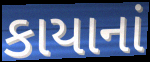
કાયાનાં